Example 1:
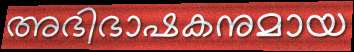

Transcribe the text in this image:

അഭിഭാഷകനുമായ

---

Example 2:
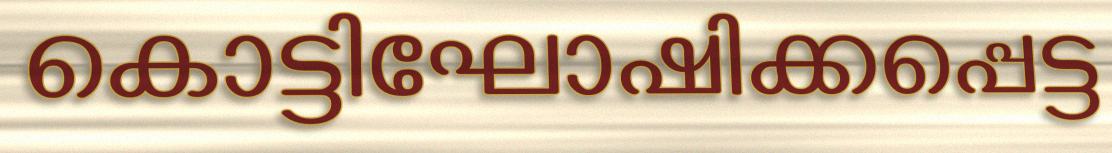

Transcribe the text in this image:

കൊട്ടിഘോഷിക്കപ്പെട്ട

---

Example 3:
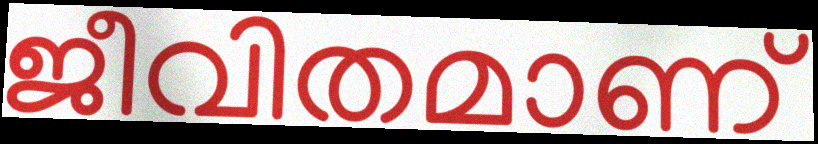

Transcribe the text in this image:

ജീവിതമാണ്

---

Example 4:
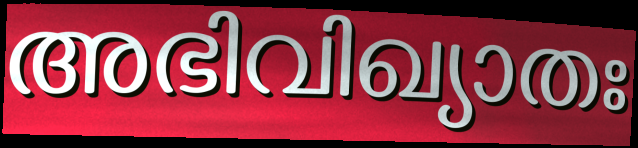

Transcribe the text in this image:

അഭിവിഖ്യാതഃ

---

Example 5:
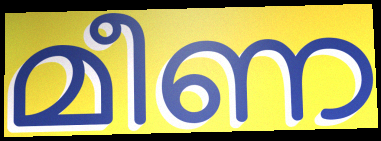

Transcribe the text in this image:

മീണ